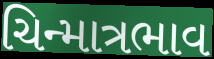
ચિન્માત્રભાવ